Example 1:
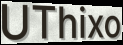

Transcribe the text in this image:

UThixo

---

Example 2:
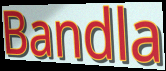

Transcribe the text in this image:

Bandla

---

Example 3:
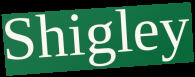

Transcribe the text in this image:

Shigley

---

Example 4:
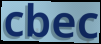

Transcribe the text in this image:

cbec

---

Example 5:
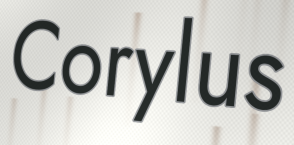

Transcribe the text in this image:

Corylus